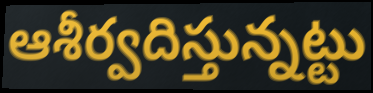
ఆశీర్వదిస్తున్నట్టు